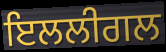
ਇਲਲੀਗਲ